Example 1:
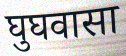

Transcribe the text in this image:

घुघवासा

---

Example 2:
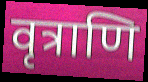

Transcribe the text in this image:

वृत्राणि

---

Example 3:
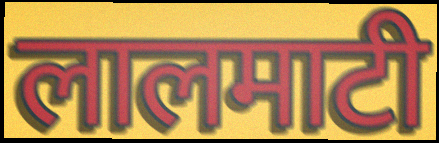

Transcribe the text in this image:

लालमाटी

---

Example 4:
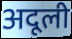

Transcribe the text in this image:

अदूली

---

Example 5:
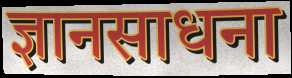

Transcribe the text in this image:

ज्ञानसाधना